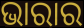
ଭାରାର